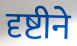
दृष्टीने